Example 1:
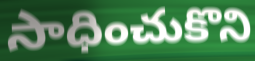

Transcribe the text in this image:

సాధించుకొని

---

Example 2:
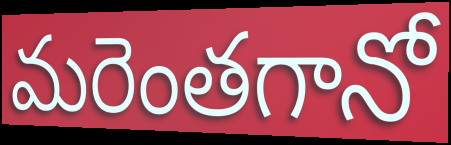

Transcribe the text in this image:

మరెంతగానో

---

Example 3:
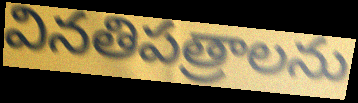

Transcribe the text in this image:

వినతిపత్రాలను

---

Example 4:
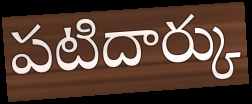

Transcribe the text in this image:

పటిదార్కు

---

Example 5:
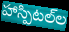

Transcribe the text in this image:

హాస్పిటల్‌ల